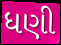
ધણી